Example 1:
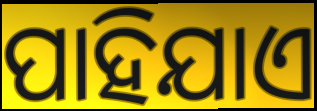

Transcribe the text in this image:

ପାହିଯାଏ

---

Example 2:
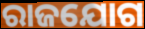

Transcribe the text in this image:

ରାଜଯୋଗ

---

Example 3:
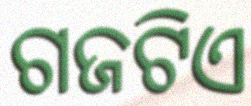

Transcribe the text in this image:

ଗଜଟିଏ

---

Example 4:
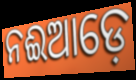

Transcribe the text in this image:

ନଈଆଡ଼େ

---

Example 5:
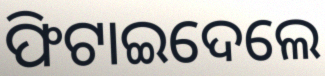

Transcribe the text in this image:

ଫିଟାଇଦେଲେ